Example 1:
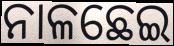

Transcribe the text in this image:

ନାଳଛେଇ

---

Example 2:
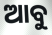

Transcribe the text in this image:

ଆବୁ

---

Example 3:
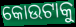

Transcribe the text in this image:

କୋଉଟାକୁ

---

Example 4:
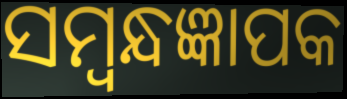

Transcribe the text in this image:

ସମ୍ବନ୍ଧଜ୍ଞାପକ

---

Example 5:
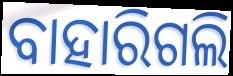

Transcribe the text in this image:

ବାହାରିଗଲି